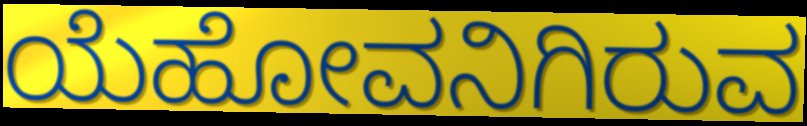
ಯೆಹೋವನಿಗಿರುವ